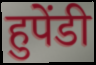
हुपेंडी